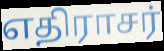
எதிராசர்